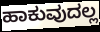
ಹಾಕುವುದಲ್ಲ